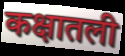
कक्षातली